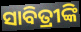
ସାବିତ୍ରୀଙ୍କି